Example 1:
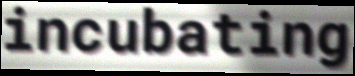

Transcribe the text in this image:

incubating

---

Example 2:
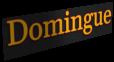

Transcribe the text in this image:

Domingue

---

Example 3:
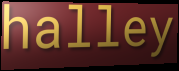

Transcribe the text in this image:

halley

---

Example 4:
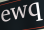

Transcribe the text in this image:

ewq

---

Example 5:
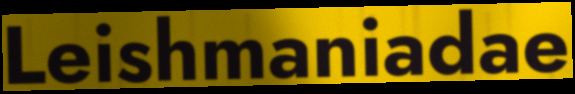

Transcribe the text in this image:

Leishmaniadae